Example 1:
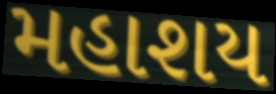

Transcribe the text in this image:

મહાશય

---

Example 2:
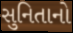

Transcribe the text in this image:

સુનિતાનો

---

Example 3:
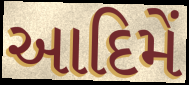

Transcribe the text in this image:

આદિમેં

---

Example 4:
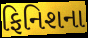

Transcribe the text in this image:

ફિનિશના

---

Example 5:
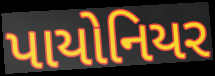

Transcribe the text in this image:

પાયોનિયર